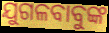
ଯୁଗଳବାବୁଙ୍କ